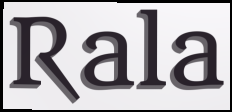
Rala